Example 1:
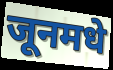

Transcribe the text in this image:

जूनमधे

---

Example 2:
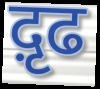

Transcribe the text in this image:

द़ृढ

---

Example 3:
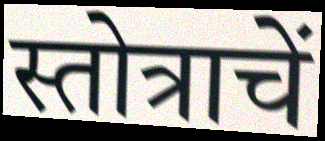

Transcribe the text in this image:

स्तोत्राचें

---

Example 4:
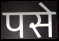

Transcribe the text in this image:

पसे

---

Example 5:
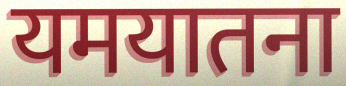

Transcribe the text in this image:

यमयातना